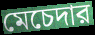
মেচেদার